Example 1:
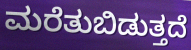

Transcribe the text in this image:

ಮರೆತುಬಿಡುತ್ತದೆ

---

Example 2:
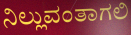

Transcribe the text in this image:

ನಿಲ್ಲುವಂತಾಗಲಿ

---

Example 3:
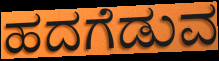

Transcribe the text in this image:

ಹದಗೆಡುವ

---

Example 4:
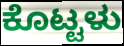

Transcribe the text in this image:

ಕೊಟ್ಟಳು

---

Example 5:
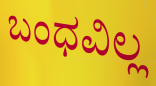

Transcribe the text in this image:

ಬಂಧವಿಲ್ಲ